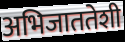
अभिजाततेशी